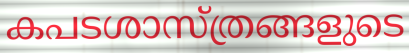
കപടശാസ്ത്രങ്ങളുടെ